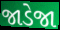
જાડેજા